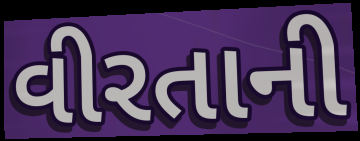
વીરતાની